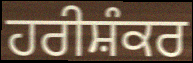
ਹਰੀਸ਼ੰਕਰ